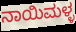
ನಾಯಿಮಳ್ಳ